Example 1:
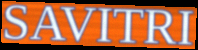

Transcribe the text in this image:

SAVITRI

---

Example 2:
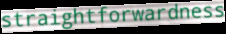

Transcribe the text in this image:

straightforwardness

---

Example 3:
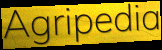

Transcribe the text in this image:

Agripedia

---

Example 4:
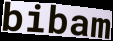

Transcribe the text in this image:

bibam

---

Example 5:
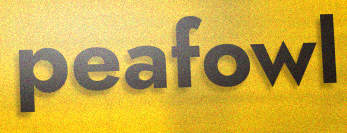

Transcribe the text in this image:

peafowl